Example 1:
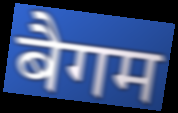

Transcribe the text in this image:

बैगम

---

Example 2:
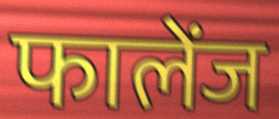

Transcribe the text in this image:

फालेंज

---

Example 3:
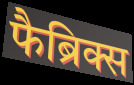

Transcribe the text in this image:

फैब्रिक्स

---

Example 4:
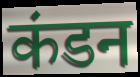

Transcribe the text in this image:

कंडन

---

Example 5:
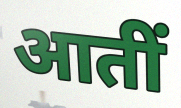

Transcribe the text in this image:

आतीं